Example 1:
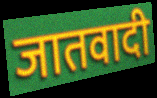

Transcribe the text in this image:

जातवादी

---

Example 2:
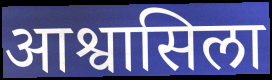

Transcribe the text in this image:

आश्वासिला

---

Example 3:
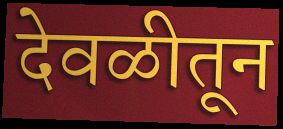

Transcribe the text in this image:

देवळीतून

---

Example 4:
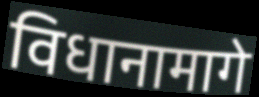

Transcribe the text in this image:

विधानामागे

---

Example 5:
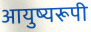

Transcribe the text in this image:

आयुष्यरूपी